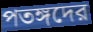
পতঙ্গদের